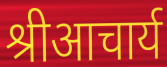
श्रीआचार्य